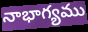
నాభాగ్యము